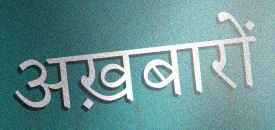
अख़बारों